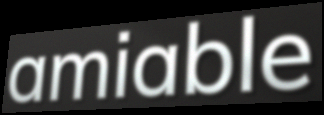
amiable